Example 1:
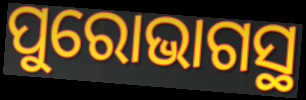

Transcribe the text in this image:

ପୁରୋଭାଗସ୍ଥ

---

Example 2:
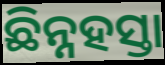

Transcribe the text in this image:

ଛିନ୍ନହସ୍ତା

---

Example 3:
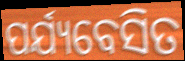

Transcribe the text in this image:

ପର୍ଯ୍ୟବେସିତ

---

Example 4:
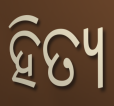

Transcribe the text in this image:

ହିତ୍ୟ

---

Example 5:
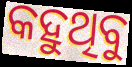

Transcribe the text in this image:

କହୁଥିବୁ